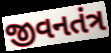
જીવનતંત્ર